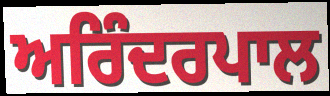
ਅਰਿੰਦਰਪਾਲ